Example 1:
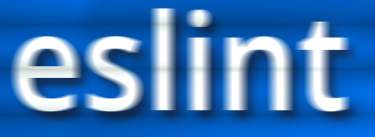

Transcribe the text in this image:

eslint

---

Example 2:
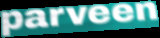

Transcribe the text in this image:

parveen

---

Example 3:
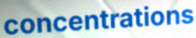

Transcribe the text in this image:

concentrations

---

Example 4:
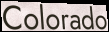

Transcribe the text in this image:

Colorado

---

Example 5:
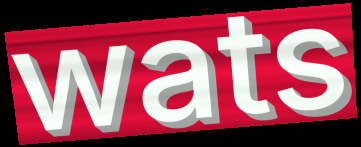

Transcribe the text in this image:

wats